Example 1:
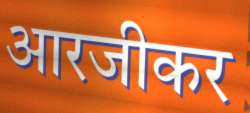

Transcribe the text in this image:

आरजीकर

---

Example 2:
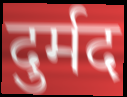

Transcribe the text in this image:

दुर्मद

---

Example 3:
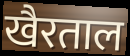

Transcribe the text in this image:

खैरताल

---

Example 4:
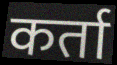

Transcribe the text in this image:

कर्ता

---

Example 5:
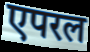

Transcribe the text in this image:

एपरल